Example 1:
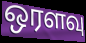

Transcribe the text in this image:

ஒரளவு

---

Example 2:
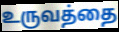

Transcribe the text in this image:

உருவத்தை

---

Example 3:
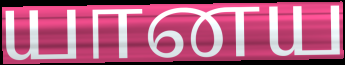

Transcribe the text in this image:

யானய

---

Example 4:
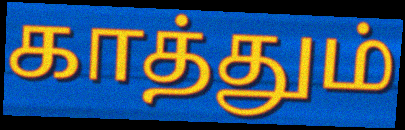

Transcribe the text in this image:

காத்தும்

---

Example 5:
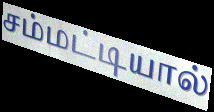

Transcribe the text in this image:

சம்மட்டியால்